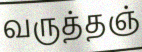
வருத்தஞ்